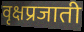
वृक्षप्रजाती